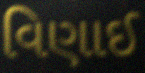
વિણાઈ